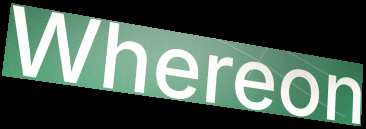
Whereon